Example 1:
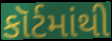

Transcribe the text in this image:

કૉર્ટમાંથી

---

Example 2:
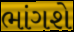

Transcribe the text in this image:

ભાંગશે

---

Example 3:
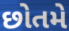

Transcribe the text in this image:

છોતમે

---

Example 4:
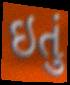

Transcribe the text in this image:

ઇતું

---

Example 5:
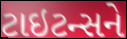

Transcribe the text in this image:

ટાઇટન્સને